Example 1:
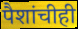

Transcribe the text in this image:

पैशांचीही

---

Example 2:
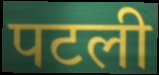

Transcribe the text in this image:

पटली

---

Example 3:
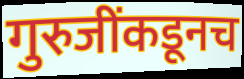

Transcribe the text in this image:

गुरुजींकडूनच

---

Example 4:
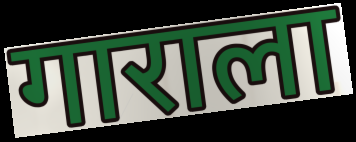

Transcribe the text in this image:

गाराला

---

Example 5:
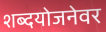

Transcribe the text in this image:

शब्दयोजनेवर